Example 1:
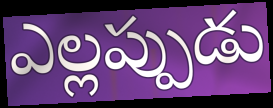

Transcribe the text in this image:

ఎల్లప్పుడు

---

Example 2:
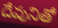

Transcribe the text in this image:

దేవునితో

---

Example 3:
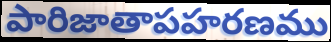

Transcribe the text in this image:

పారిజాతాపహరణము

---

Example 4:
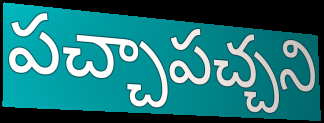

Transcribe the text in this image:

పచ్చాపచ్చని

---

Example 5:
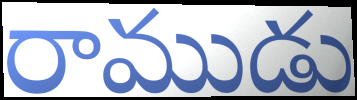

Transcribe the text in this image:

రాముడు